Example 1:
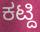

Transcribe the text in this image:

ಕಟ್ದಿ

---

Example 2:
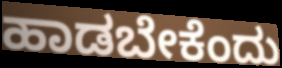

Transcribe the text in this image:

ಹಾಡಬೇಕೆಂದು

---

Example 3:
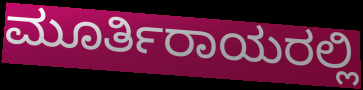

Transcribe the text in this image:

ಮೂರ್ತಿರಾಯರಲ್ಲಿ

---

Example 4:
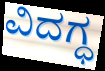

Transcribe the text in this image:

ವಿದಗ್ಧ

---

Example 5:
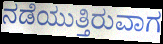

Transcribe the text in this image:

ನಡೆಯುತ್ತಿರುವಾಗ